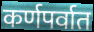
कर्णपर्वात